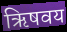
ऋिषवय